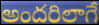
అందరిలాగే